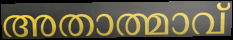
അതാത്മാവ്